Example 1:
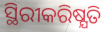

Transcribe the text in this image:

ସ୍ଥିରୀକରିଷ୍ଯତି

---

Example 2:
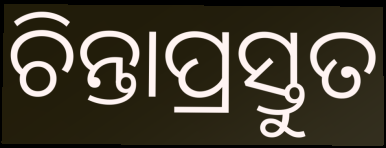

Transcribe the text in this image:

ଚିନ୍ତାପ୍ରସ୍ତୁତ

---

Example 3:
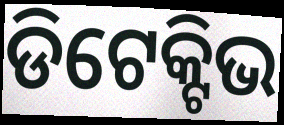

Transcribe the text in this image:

ଡିଟେକ୍ଟିଭ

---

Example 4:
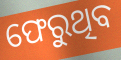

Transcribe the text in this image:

ଫେରୁଥିବ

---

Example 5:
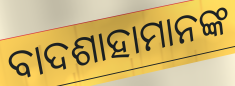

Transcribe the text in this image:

ବାଦଶାହାମାନଙ୍କ